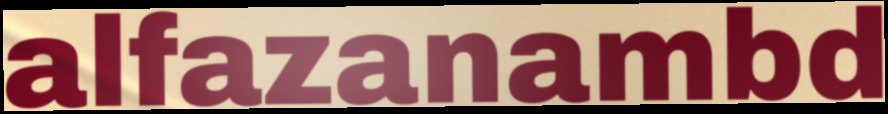
alfazanambd